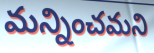
మన్నించమని